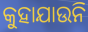
କୁହାଯାଉନି